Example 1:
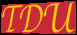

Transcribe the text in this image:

TDU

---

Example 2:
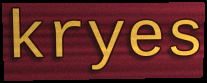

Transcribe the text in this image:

kryes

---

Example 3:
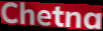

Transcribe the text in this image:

Chetna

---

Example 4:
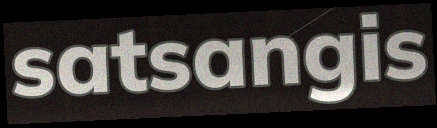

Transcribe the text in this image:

satsangis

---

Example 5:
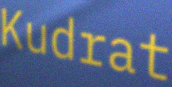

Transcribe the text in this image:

Kudrat